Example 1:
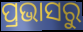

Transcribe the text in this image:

ପ୍ରଭାସରୁ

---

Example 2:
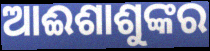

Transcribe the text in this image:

ଆଈଶାଶୁଙ୍କର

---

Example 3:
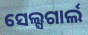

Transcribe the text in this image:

ସେଲ୍ସଗାର୍ଲ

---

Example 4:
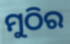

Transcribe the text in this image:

ମୁଠିର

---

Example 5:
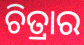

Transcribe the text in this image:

ଚିତ୍ରାର